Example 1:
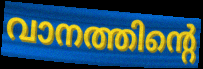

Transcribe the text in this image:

വാനത്തിന്റെ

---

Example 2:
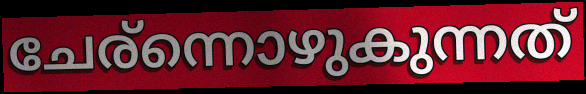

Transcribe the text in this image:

ചേര്ന്നൊഴുകുന്നത്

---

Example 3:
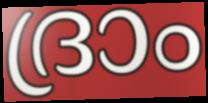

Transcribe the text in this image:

ദ്രാം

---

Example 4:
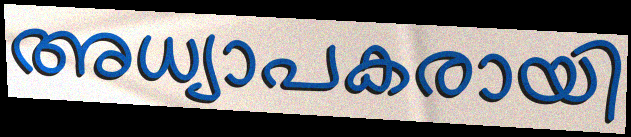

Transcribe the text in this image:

അധ്യാപകരായി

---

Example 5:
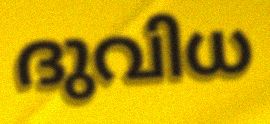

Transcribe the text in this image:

ദുവിധ